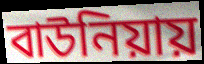
বাউনিয়ায়